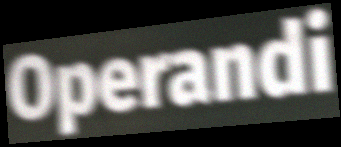
Operandi